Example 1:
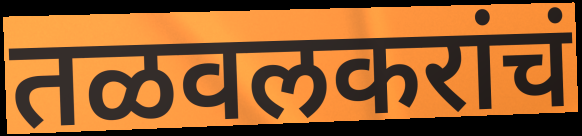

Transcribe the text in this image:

तळवलकरांचं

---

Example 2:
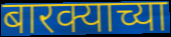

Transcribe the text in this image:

बारक्याच्या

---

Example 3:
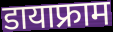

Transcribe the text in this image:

डायाफ्राम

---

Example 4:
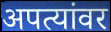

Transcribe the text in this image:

अपत्यांवर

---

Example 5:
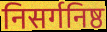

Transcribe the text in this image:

निसर्गनिष्ठ